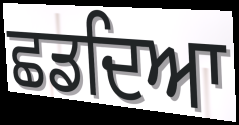
ਛਡਦਿਆ